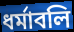
ধর্মাবলি